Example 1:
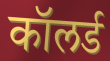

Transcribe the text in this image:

कॉलर्ड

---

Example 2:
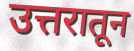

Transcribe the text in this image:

उत्तरातून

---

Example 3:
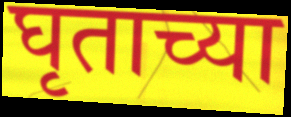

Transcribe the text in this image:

घृताच्या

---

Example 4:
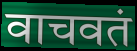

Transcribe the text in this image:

वाचवतं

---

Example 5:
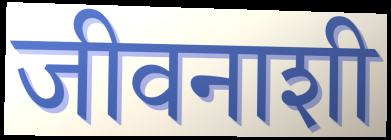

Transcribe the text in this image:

जीवनाशी